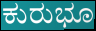
ಕುರುಭೂ